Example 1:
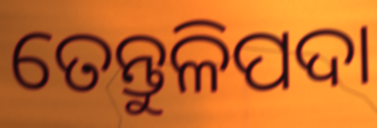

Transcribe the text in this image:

ତେନ୍ତୁଳିପଦା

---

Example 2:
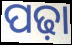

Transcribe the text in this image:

ପଢ଼ା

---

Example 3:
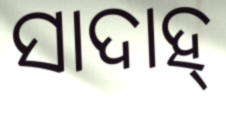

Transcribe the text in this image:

ସାଦାହ୍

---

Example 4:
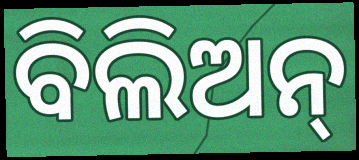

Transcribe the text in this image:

ବିଲିଅନ୍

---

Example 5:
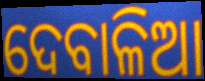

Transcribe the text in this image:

ଦେବାଳିଆ